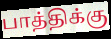
பாத்திக்கு